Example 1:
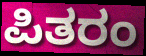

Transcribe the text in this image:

ಪಿತರಂ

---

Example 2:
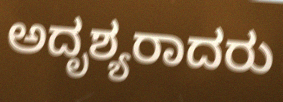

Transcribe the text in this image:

ಅದೃಶ್ಯರಾದರು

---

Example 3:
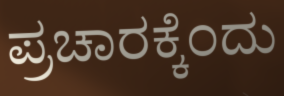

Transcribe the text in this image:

ಪ್ರಚಾರಕ್ಕೆಂದು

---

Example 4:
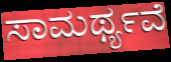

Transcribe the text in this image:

ಸಾಮರ್ಥ್ಯವೆ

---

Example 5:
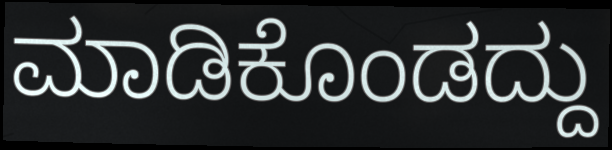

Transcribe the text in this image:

ಮಾಡಿಕೊಂಡದ್ದು